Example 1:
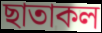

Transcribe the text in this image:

ছাতাকল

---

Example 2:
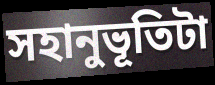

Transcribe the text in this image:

সহানুভূতিটা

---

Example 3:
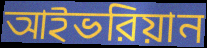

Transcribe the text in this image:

আইভরিয়ান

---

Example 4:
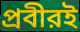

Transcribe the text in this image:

প্রবীরই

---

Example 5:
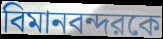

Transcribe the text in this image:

বিমানবন্দরকে